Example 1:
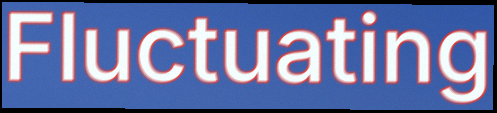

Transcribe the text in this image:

Fluctuating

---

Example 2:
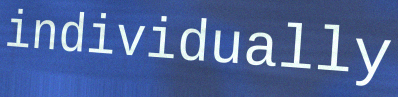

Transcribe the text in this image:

individually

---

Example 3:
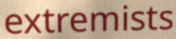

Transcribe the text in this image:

extremists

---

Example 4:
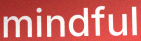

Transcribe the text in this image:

mindful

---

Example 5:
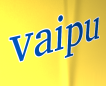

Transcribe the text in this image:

vaipu